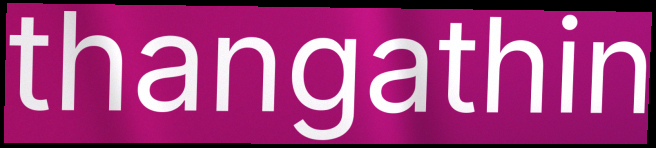
thangathin